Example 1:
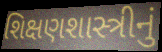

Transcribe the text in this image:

શિક્ષણશાસ્ત્રીનું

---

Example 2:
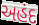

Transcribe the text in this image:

અહંદ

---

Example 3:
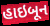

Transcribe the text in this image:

હાઇબૂન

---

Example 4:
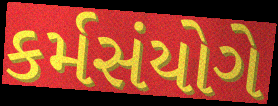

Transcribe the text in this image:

કર્મસંયોગે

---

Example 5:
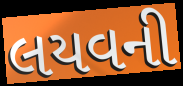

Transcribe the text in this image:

લયવની